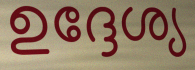
ഉദ്ദേശ്യ